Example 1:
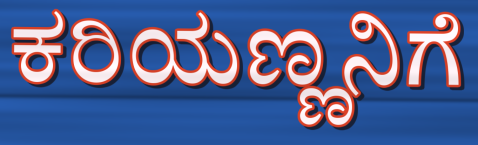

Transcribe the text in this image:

ಕರಿಯಣ್ಣನಿಗೆ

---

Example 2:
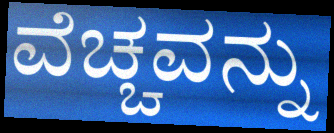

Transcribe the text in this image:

ವೆಚ್ಚವನ್ನು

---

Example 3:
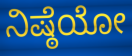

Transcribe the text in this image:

ನಿಷ್ಠೆಯೋ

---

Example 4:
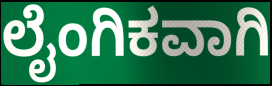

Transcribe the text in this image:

ಲೈಂಗಿಕವಾಗಿ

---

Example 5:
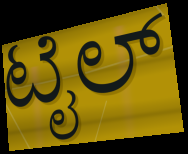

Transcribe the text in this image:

ಟೈಲ್